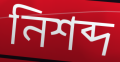
নিশব্দ